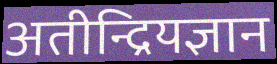
अतीन्द्रियज्ञान